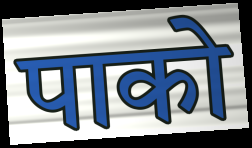
पाको